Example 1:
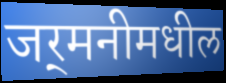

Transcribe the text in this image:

जर्मनीमधील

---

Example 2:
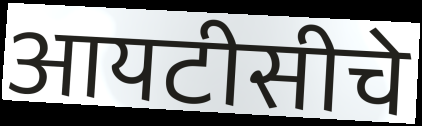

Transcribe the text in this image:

आयटीसीचे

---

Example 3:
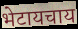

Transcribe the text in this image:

भेटायचाय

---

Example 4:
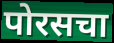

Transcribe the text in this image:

पोरसचा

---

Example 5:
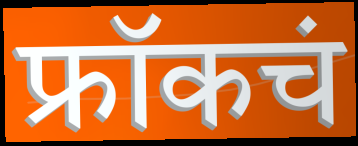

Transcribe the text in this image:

फ्रॉकचं